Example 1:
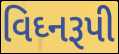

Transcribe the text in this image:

વિઘ્નરૂપી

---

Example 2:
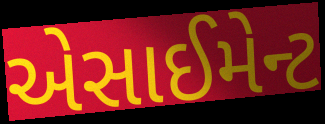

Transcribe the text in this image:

એસાઈમેન્ટ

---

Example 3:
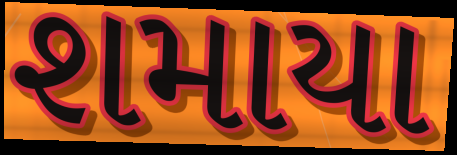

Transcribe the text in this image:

શમાયા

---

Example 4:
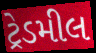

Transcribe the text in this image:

ટ્રેડમીલ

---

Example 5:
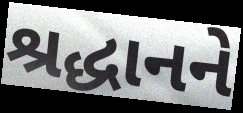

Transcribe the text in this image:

શ્રદ્ધાનને